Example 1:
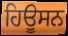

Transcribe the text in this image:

ਹਿਊਸਨ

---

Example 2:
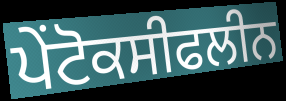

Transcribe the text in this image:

ਪੇਂਟੋਕਸੀਫਲੀਨ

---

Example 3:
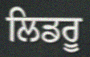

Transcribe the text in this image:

ਲਿਡਰੂ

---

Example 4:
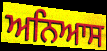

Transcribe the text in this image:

ਅਨਿਆਸ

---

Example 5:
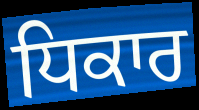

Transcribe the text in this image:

ਧਿਕਾਰ